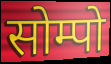
सोम्पो